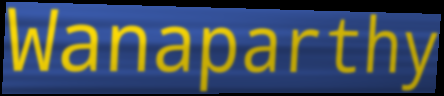
Wanaparthy